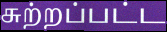
சுற்றப்பட்ட